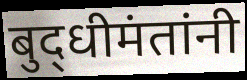
बुद्धीमंतांनी